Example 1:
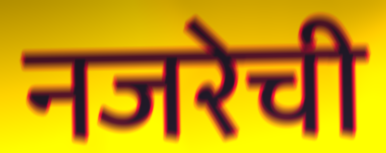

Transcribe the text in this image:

नजरेची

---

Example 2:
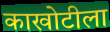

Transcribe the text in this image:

काखोटीला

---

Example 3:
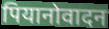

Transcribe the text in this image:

पियानोवादन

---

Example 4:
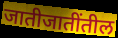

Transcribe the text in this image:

जातीजातींतील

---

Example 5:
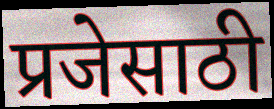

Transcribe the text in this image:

प्रजेसाठी